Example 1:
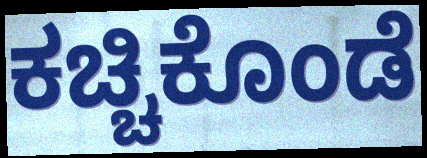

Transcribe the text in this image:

ಕಚ್ಚಿಕೊಂಡೆ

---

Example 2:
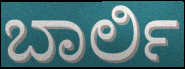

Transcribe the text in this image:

ಬಾರ್ಲಿ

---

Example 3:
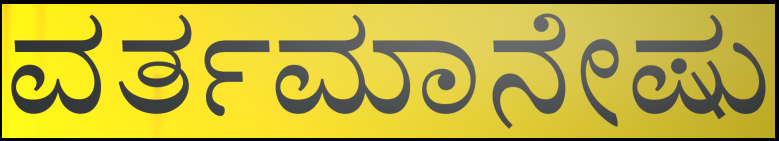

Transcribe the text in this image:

ವರ್ತಮಾನೇಷು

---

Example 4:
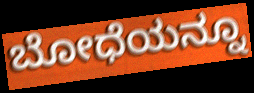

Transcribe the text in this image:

ಬೋಧೆಯನ್ನೂ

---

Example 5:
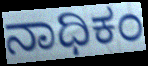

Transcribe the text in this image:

ನಾಧಿಕಂ